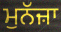
ਮੁਨੱਜ਼ਾ